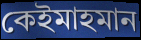
কেইমাহমান